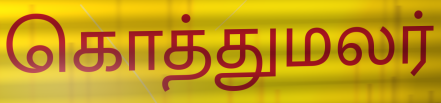
கொத்துமலர்